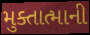
મુક્તાત્માની